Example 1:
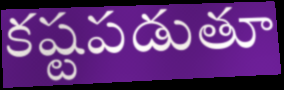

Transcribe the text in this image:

కష్టపడుతూ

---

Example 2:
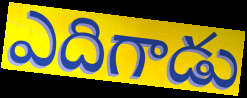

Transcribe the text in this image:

ఎదిగాడు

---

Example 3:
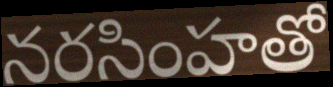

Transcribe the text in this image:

నరసింహతో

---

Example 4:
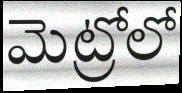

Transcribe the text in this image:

మెట్రోలో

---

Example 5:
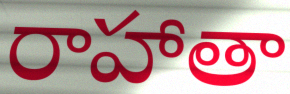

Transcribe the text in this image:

రాహాతా